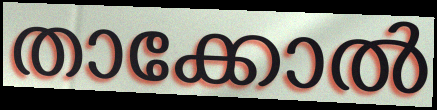
താക്കോൽ